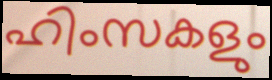
ഹിംസകളും